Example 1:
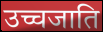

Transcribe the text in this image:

उच्चजाति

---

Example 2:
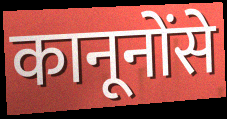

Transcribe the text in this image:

कानूनोंसे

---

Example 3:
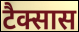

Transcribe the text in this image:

टैक्सास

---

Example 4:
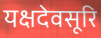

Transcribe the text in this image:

यक्षदेवसूरि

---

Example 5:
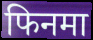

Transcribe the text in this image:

फिनमा